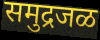
समुद्रजळ